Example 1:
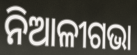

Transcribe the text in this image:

ନିଆଳୀଗଭା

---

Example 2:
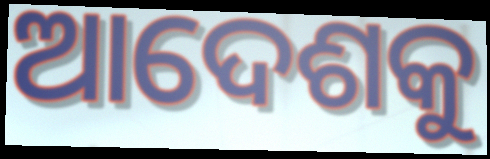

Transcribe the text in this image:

ଆଦେଶକୁ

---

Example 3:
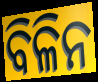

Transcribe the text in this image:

ବିଳିନ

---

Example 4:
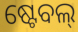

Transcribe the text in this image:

ଷ୍ଟେବଲ୍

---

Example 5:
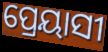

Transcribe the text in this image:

ପ୍ରେୟାସୀ